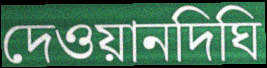
দেওয়ানদিঘি